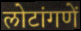
लोटांगणें